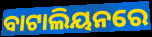
ବାଟାଲିୟନରେ